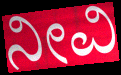
ನೀವಿ